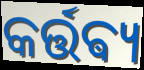
କର୍ତ୍ତଵ୍ୟ